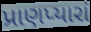
પ્રાણપ્યારાં